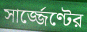
সার্জ্জেণ্টের